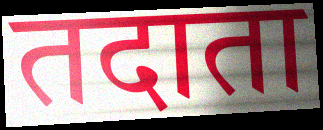
तदाता